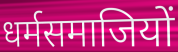
धर्मसमाजियों